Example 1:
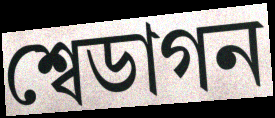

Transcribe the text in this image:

শ্বেডাগন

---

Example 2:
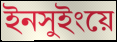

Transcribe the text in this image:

ইনসুইংয়ে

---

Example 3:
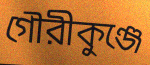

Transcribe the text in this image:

গৌরীকুঞ্জে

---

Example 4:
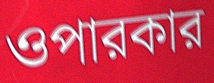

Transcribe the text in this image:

ওপারকার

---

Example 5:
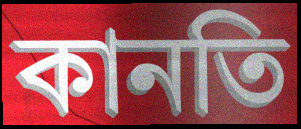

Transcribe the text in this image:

কানতি